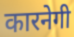
कारनेगी